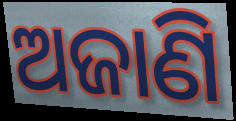
ଅଜାଣି